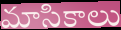
మాసికాలు